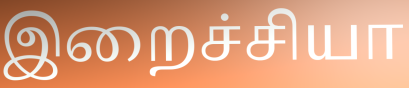
இறைச்சியா